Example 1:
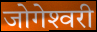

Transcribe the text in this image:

जोगेश्‍वरी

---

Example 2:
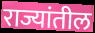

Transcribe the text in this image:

राज्यांतील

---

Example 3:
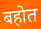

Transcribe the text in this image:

बहोत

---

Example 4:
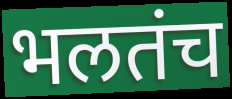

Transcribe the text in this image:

भलतंच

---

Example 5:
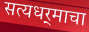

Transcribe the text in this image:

सत्यधर्माचा